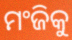
ମଂଜିକୁ